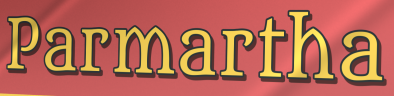
Parmartha